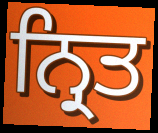
ਨ੍ਰਿਤ